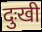
दुःखी